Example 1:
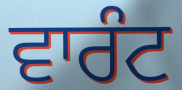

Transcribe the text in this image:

ਵਾਰੰਟ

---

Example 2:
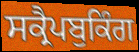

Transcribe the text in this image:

ਸਕ੍ਰੈਪਬੁਕਿੰਗ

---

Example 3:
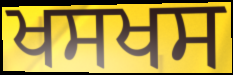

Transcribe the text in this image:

ਖਸਖਸ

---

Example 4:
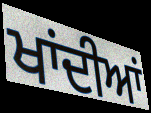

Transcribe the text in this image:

ਖਾਂਦੀਆਂ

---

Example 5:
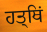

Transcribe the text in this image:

ਹਤ੍ਥਿਂ